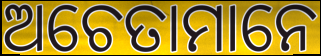
ଅଚେତାମାନେ